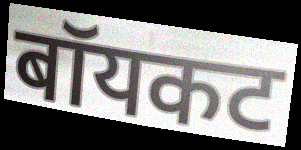
बॉयकट